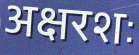
अक्षरशः